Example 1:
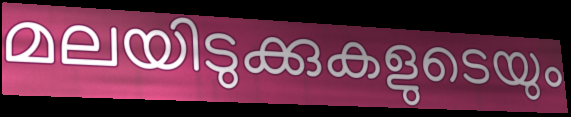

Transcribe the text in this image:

മലയിടുക്കുകളുടെയും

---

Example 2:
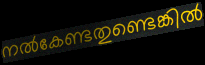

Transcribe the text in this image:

നൽകേണ്ടതുണ്ടെങ്കിൽ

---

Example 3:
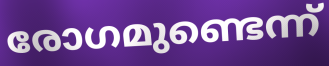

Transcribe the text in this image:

രോഗമുണ്ടെന്ന്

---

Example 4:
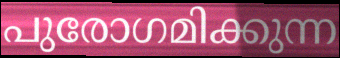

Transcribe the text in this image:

പുരോഗമിക്കുന്ന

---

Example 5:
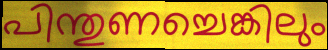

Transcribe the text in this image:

പിന്തുണച്ചെങ്കിലും